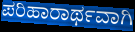
ಪರಿಹಾರಾರ್ಥವಾಗಿ